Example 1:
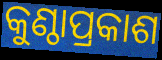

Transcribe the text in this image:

କୁଣ୍ଠାପ୍ରକାଶ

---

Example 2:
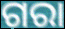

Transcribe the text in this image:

ଗରା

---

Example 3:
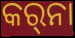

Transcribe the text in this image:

କର୍‍ନା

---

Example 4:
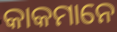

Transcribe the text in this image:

କାକମାନେ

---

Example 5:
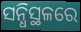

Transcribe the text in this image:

ସନ୍ଧିସ୍ଥଳରେ